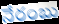
నేరంబు